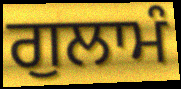
ਗੁਲਾਮੰ